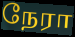
நேரா